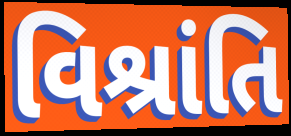
વિશ્રાંતિ